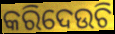
କରିଦେଉଚି